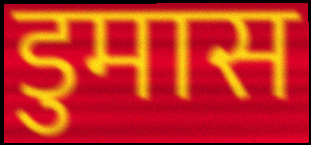
डुमास